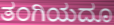
ತಂಗಿಯದೂ